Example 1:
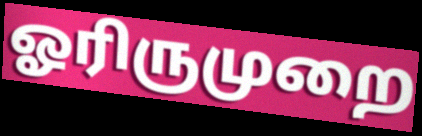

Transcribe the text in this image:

ஓரிருமுறை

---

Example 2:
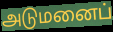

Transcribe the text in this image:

அடுமனைப்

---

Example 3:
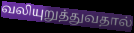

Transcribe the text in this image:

வலியுறுத்துவதால்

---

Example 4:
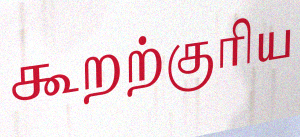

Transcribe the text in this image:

கூறற்குரிய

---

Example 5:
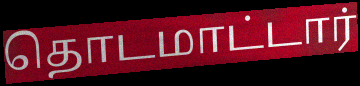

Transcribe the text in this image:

தொடமாட்டார்